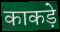
काकड़े